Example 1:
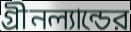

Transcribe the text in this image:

গ্রীনল্যান্ডের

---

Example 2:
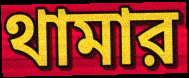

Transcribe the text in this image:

থামার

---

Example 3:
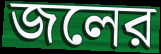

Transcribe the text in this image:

জলের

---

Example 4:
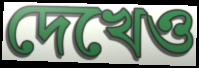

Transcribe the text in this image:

দেখেও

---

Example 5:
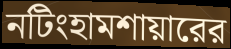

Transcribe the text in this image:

নটিংহামশায়ারের